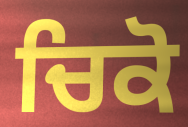
ਚਿਕੋ